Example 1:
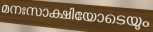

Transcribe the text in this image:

മനഃസാക്ഷിയോടെയും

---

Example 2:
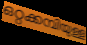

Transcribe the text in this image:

ഒറ്റക്കമ്പിയുള്ള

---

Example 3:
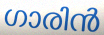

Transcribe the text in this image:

ഗാരിൻ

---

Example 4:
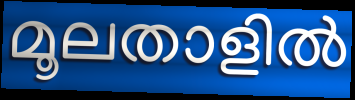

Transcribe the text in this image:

മൂലതാളിൽ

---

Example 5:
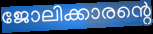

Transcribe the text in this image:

ജോലിക്കാരന്റെ